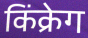
किंक्रेग